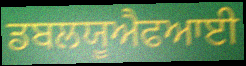
ਡਬਲਯੂਐਫਆਈ